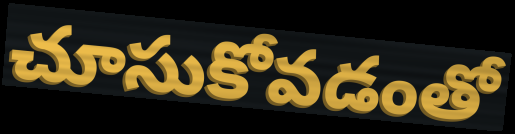
చూసుకోవడంతో